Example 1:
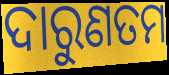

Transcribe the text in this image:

ଦାରୁଣତମ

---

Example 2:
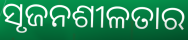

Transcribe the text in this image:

ସୃଜନଶୀଳତାର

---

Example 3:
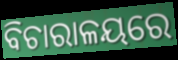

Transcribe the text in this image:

ବିଚାରାଳୟରେ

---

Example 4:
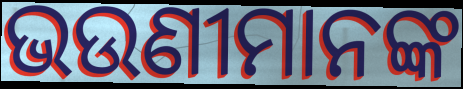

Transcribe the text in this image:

ଭଉଣୀମାନଙ୍କ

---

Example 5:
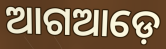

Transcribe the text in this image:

ଆଗଆଡ଼େ